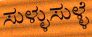
ಸುಳ್ಳುಸುಳ್ಳೆ